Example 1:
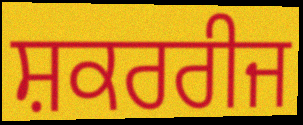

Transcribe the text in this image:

ਸ਼ਕਰਰੀਜ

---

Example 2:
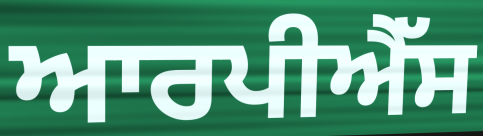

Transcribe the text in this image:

ਆਰਪੀਐੱਸ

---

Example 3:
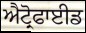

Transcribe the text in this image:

ਐਟ੍ਰੋਫਾਈਡ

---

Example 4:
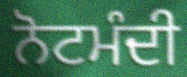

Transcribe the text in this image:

ਨੋਟਮੰਦੀ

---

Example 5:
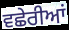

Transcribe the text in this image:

ਵਛੇਰੀਆਂ